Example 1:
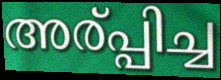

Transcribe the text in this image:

അര്പ്പിച്ച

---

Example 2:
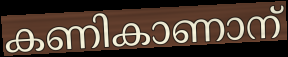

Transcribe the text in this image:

കണികാണാന്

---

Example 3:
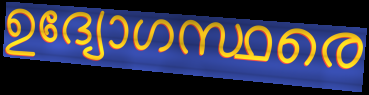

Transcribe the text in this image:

ഉദ്യോഗസ്ഥരെ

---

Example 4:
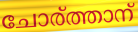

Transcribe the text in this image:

ചോര്ത്താന്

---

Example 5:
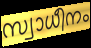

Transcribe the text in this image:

സ്വാധീനം